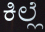
ಕಿಲ್ಲೆ